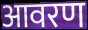
आवरण